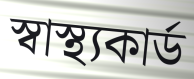
স্বাস্থ্যকার্ড